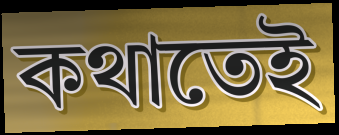
কথাতেই